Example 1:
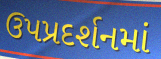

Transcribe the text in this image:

ઉપપ્રદર્શનમાં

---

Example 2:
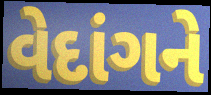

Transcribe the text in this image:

વેદાંગને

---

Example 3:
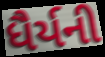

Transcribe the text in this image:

ધૈર્યની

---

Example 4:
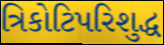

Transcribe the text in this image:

ત્રિકોટિપરિશુદ્ધ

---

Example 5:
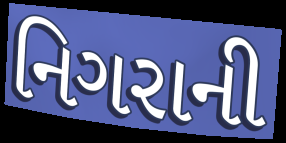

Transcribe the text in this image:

નિગરાની